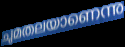
ചുമതലയാണെന്നു